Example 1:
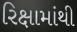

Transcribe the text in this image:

રિક્ષામાંથી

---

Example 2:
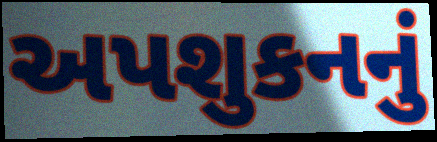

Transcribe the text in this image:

અપશુકનનું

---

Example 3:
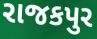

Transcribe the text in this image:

રાજકપુર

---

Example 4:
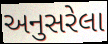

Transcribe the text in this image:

અનુસરેલા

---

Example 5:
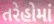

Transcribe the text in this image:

તરેહોમાં